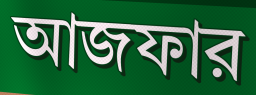
আজফার